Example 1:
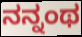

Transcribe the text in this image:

ನನ್ನಂಥ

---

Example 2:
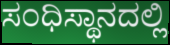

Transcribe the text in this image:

ಸಂಧಿಸ್ಥಾನದಲ್ಲಿ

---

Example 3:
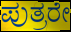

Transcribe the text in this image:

ಪುತ್ರರೇ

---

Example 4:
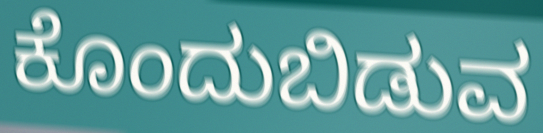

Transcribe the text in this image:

ಕೊಂದುಬಿಡುವ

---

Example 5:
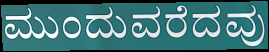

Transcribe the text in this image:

ಮುಂದುವರೆದವು